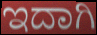
ಇದಾಗಿ